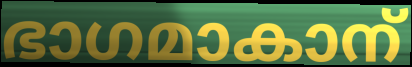
ഭാഗമാകാന്